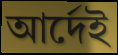
আর্দেই